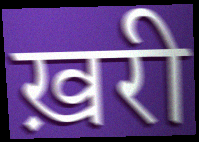
ख़री